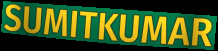
SUMITKUMAR